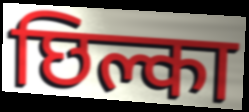
छिल्का